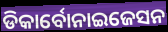
ଡିକାର୍ବୋନାଇଜେସନ